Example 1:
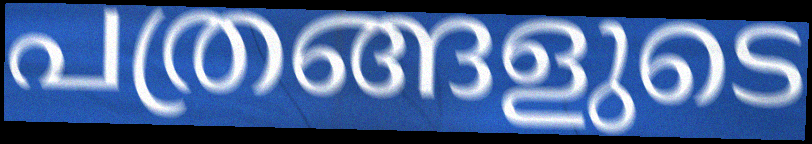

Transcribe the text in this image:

പത്രങ്ങളുടെ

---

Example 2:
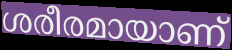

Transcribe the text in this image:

ശരീരമായാണ്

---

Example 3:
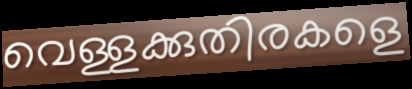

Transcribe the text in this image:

വെള്ളക്കുതിരകളെ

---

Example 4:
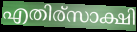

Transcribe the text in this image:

എതിര്സാക്ഷി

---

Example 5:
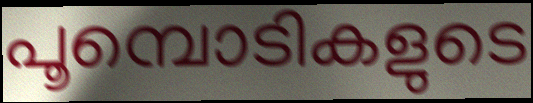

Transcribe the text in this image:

പൂമ്പൊടികളുടെ